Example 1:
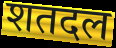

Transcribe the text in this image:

शतदल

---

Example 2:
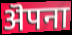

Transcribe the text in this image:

ऄपना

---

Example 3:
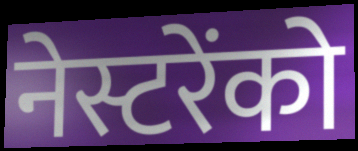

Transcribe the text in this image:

नेस्टरेंको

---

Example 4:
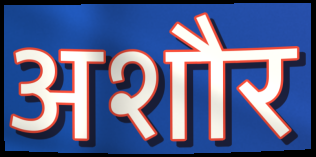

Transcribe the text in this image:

अशौर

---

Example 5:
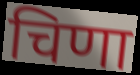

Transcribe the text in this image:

चिणा